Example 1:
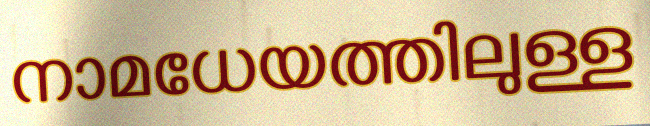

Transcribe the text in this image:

നാമധേയത്തിലുള്ള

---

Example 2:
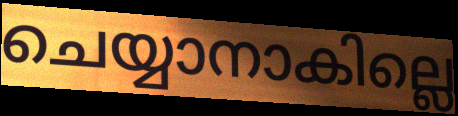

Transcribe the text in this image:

ചെയ്യാനാകില്ലെ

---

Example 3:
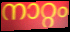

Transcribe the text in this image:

നാറ്റം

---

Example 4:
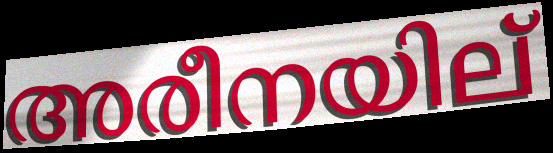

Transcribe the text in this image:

അരീനയില്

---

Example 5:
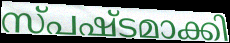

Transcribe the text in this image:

സ്പഷ്ടമാക്കി